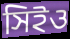
সিইও